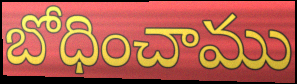
బోధించాము